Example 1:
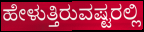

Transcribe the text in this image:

ಹೇಳುತ್ತಿರುವಷ್ಟರಲ್ಲಿ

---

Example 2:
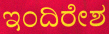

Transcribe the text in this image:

ಇಂದಿರೇಶ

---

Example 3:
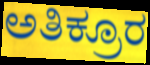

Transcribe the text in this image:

ಅತಿಕ್ರೂರ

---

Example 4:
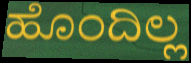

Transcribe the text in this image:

ಹೊಂದಿಲ್ಲ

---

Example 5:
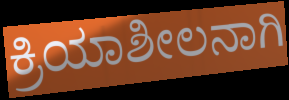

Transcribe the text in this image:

ಕ್ರಿಯಾಶೀಲನಾಗಿ